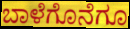
ಬಾಳೆಗೊನೆಗೂ